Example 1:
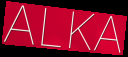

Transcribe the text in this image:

ALKA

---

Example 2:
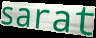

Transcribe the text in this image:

sarat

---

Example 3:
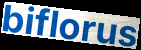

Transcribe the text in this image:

biflorus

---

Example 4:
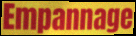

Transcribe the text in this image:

Empannage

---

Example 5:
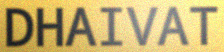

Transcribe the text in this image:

DHAIVAT